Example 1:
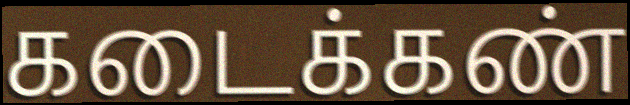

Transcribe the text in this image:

கடைக்கண்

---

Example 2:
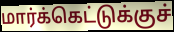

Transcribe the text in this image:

மார்க்கெட்டுக்குச்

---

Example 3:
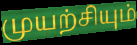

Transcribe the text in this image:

முயற்சியும்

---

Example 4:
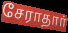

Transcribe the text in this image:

சேராதார்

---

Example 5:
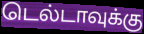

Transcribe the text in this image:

டெல்டாவுக்கு